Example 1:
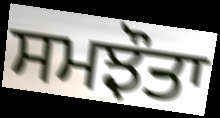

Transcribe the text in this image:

ਸਮਝੌਤਾ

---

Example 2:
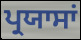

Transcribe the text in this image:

ਪ੍ਰਯਾਸਾਂ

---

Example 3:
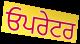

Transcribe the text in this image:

ਓਪਰੇਟਰ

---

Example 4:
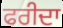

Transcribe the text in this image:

ਫਰੀਦਾ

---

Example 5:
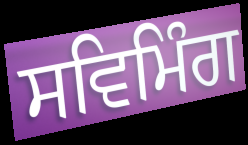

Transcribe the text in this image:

ਸਵਿਮਿੰਗ